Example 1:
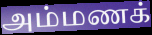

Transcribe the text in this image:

அம்மணக்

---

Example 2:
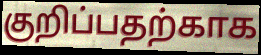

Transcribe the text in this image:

குறிப்பதற்காக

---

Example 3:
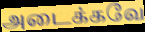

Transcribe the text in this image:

அடைக்கவே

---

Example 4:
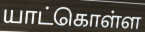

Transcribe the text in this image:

யாட்கொள்ள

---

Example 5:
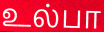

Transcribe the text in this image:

உல்பா